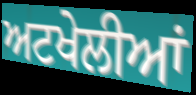
ਅਟਖੇਲੀਆਂ